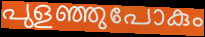
പുളഞ്ഞുപോകും